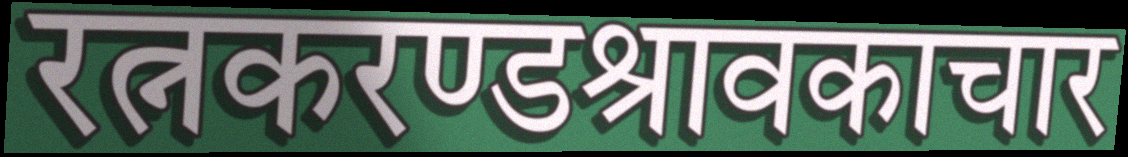
रत्नकरण्डश्रावकाचार